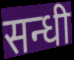
सन्धी